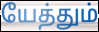
யேத்தும்